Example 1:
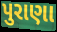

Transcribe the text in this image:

પુરાણા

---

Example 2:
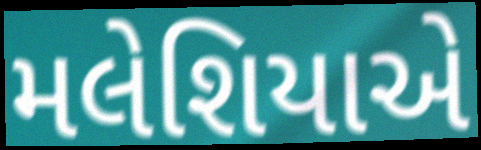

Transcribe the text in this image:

મલેશિયાએ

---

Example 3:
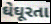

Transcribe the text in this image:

ઘેઘૂરતા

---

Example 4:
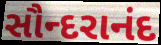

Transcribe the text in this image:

સૌન્દરાનંદ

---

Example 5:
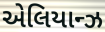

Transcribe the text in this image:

એલિયાન્ઝ